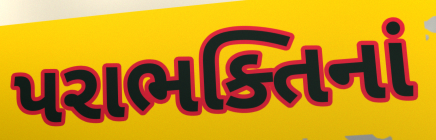
પરાભક્તિનાં